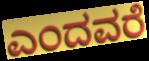
ಎಂದವರೆ